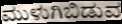
ಮುಳುಗಿಬಿಡುವ